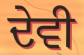
ਦੇਵੀ